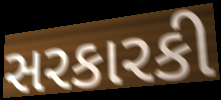
સરકારકી